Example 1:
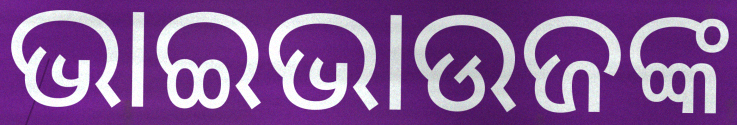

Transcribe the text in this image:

ଭାଇଭାଉଜଙ୍କ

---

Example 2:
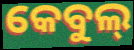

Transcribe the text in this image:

କେବୁଲ୍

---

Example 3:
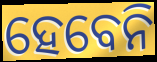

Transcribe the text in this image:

ହେବେନି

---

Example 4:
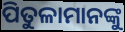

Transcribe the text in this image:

ପିତୁଳାମାନଙ୍କୁ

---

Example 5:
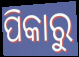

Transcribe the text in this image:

ପିକାରୁ